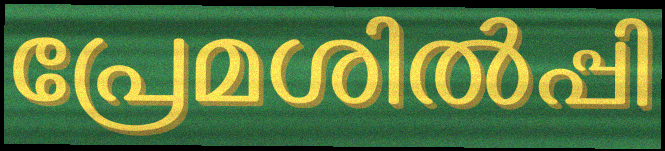
പ്രേമശിൽപ്പി